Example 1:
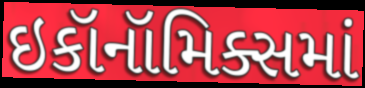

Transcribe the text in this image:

ઇકૉનૉમિક્સમાં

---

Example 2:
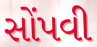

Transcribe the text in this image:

સોંપવી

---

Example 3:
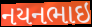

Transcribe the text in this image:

નયનભાઇ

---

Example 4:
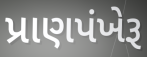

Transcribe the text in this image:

પ્રાણપંખેરૂ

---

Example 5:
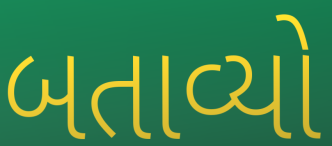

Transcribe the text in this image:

બતાવ્યો